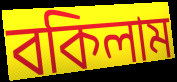
বকিলাম